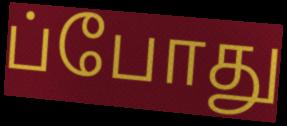
ப்போது